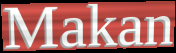
Makan